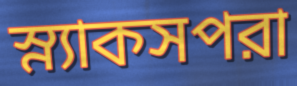
স্ন্যাকসপরা